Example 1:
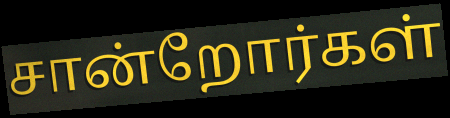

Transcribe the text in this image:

சான்றோர்கள்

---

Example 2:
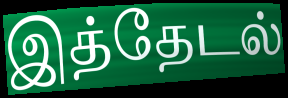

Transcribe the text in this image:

இத்தேடல்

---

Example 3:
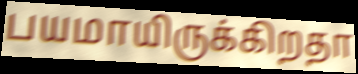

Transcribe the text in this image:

பயமாயிருக்கிறதா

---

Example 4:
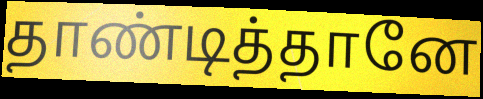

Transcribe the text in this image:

தாண்டித்தானே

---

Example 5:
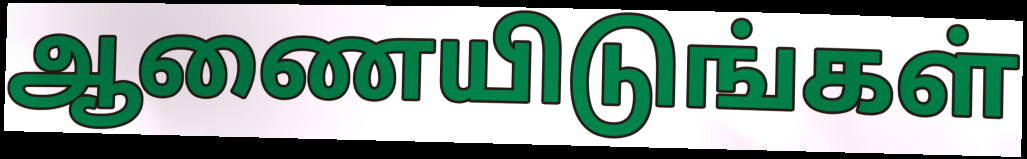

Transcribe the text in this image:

ஆணையிடுங்கள்